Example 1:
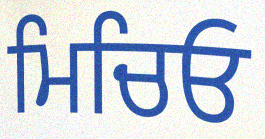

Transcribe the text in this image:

ਮਿਚਿਓ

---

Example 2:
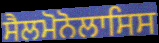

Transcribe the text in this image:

ਸੈਲਮੋਨੋਲਾਸਿਸ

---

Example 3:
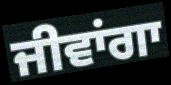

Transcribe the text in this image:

ਜੀਵਾਂਗਾ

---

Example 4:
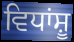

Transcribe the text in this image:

ਵਿਧਾਂਸ਼ੂ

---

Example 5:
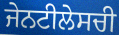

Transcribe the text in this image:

ਜੇਨਟੀਲੇਸਚੀ